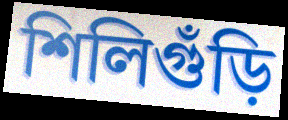
শিলিগুঁড়ি